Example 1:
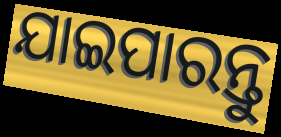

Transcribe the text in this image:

ଯାଇପାରନ୍ତୁ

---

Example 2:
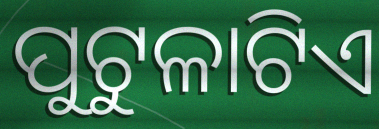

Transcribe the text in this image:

ପୁଟୁଳାଟିଏ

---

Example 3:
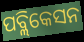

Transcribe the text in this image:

ପବ୍ଲିକେସନ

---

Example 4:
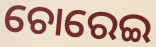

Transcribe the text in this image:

ଚୋରେଇ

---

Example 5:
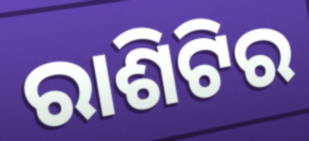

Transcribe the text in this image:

ରାଶିଟିର